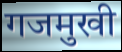
गजमुखी